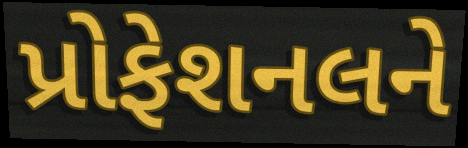
પ્રોફેશનલને